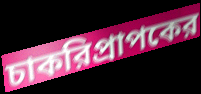
চাকরিপ্রাপকের